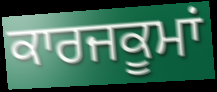
ਕਾਰਜਕੂਮਾਂ